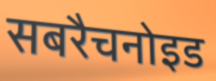
सबरैचनोइड